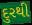
દુરથી